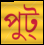
পুট্